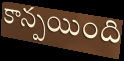
కాన్పయింది